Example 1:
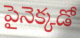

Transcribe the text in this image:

పైనెక్కడో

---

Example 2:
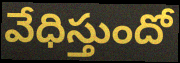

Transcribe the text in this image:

వేధిస్తుందో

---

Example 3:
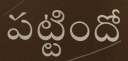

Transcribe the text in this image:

పట్టిందో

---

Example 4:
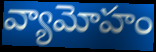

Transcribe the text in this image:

వ్యామోహం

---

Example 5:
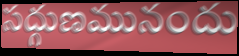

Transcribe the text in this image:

సద్గుణమునందు